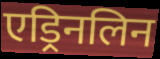
एड्रिनलिन